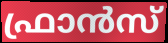
ഫ്രാൻസ്